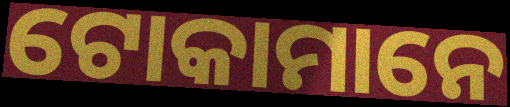
ଟୋକାମାନେ